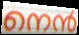
നെൻ